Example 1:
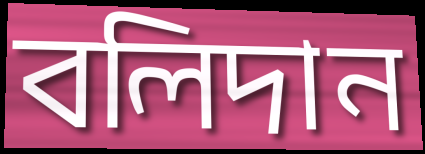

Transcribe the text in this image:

বলিদান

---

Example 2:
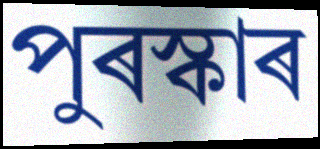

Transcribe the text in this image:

পুৰস্কাৰ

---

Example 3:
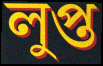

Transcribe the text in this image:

লুপ্ত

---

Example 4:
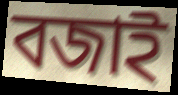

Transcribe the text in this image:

বজাই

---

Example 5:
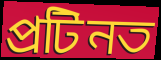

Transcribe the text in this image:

প্ৰটিনত